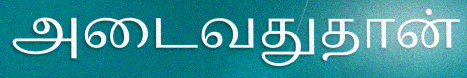
அடைவதுதான்